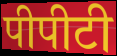
पीपीटी